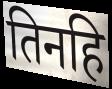
तिनहि